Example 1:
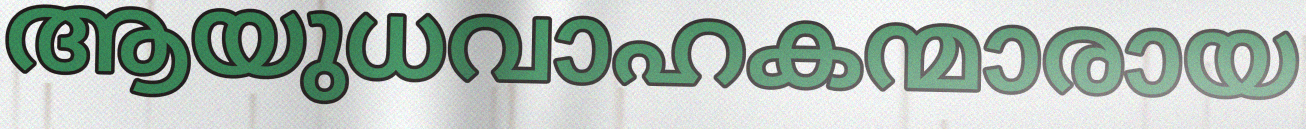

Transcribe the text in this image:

ആയുധവാഹകന്മാരായ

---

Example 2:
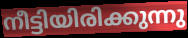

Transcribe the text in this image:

നീട്ടിയിരിക്കുന്നു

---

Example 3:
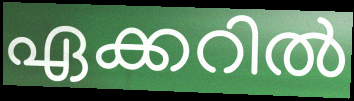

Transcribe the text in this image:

ഏക്കറിൽ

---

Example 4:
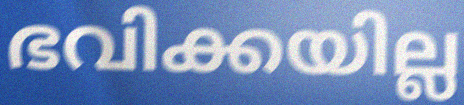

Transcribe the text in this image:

ഭവിക്കയില്ല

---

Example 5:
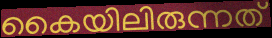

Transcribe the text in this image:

കൈയിലിരുന്നത്